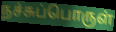
நச்சுப்பொருள்